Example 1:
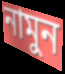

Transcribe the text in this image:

নামুন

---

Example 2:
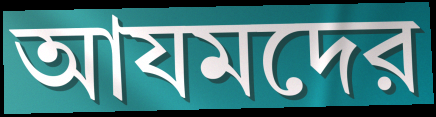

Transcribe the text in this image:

আযমদের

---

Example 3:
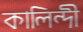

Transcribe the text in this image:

কালিন্দী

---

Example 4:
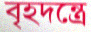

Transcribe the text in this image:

বৃহদন্ত্রে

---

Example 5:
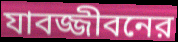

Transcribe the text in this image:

যাবজ্জীবনের